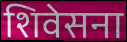
शिवेसना